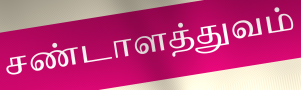
சண்டாளத்துவம்